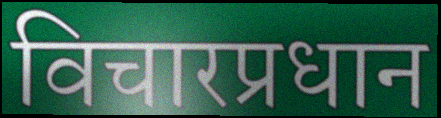
विचारप्रधान